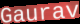
Gaurav